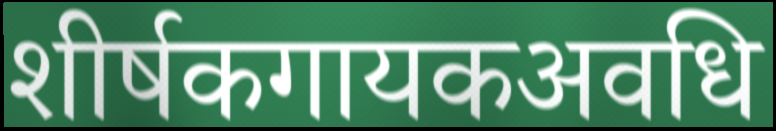
शीर्षकगायकअवधि